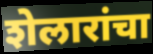
शेलारांचा